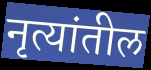
नृत्यांतील